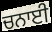
ਚਨਾਈ